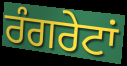
ਰੰਗਰੇਟਾਂ